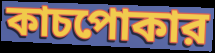
কাচপোকার